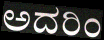
ಅದರಿಂ